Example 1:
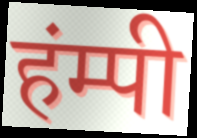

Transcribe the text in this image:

हंम्पी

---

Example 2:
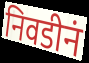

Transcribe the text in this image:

निवडीनं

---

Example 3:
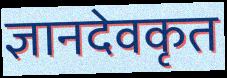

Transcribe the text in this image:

ज्ञानदेवकृत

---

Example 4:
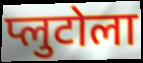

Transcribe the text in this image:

प्लुटोला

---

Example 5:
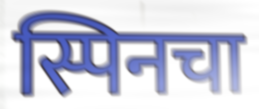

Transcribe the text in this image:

स्पिनचा